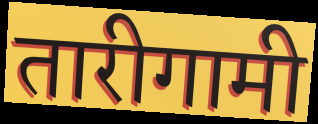
तारीगामी